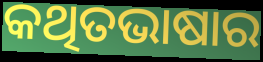
କଥିତଭାଷାର